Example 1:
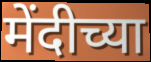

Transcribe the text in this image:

मेंदीच्या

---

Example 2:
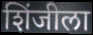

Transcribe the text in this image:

शिंजीला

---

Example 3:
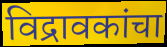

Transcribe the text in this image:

विद्रावकांचा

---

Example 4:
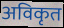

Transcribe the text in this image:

अविकृत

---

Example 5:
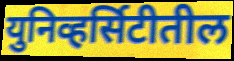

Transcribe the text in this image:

युनिव्हर्सिटीतील